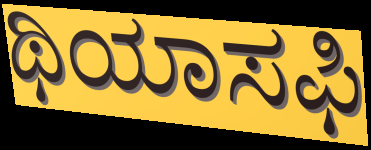
ಥಿಯಾಸಫಿ